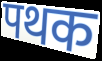
पथक